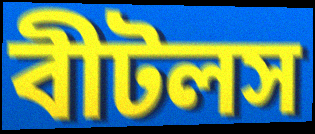
বীটলস